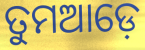
ତୁମଆଡ଼େ